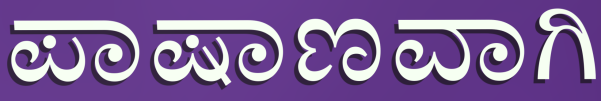
ಪಾಷಾಣವಾಗಿ